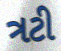
ત્રટી